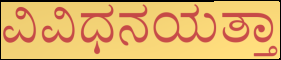
ವಿವಿಧನಯತ್ತಾ